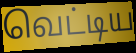
வெட்டிய